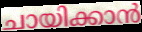
ചായിക്കാൻ